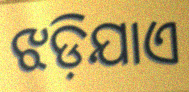
ଝଡ଼ିଯାଏ